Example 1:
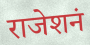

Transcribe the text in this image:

राजेशनं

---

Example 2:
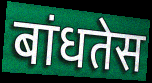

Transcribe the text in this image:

बांधतेस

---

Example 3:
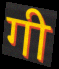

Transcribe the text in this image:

गी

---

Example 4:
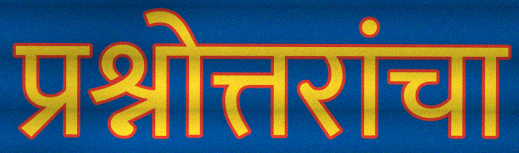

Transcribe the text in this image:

प्रश्नोत्तरांचा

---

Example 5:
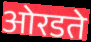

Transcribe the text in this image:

ओरडते